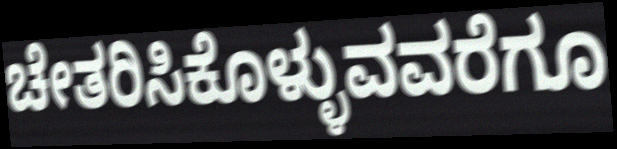
ಚೇತರಿಸಿಕೊಳ್ಳುವವರೆಗೂ